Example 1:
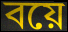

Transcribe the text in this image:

বয়ে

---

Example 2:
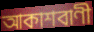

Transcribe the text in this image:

আকাশবাণী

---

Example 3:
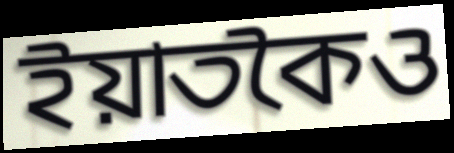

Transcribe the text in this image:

ইয়াতকৈও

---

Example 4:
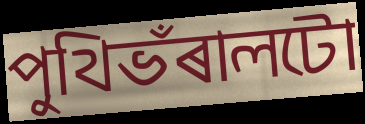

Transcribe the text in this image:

পুথিভঁৰালটো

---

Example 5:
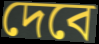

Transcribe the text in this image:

দেবে